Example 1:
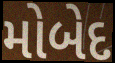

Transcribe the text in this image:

મોબેદ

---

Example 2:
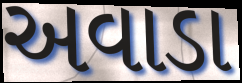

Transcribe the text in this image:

અવાડા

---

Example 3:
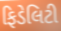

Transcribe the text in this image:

ફિડેલિટી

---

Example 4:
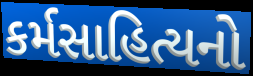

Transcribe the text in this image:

કર્મસાહિત્યનો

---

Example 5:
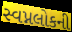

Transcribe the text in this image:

સ્વપ્નલોકની